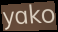
yako